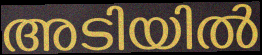
അടിയിൽ